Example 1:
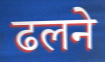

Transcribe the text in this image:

ढलने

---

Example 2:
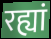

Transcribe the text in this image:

रह्यां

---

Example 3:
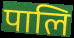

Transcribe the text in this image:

पालि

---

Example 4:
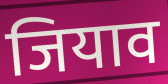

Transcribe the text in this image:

जियाव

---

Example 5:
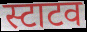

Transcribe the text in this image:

स्टाटव